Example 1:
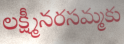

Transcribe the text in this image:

లక్ష్మీనరసమ్మకు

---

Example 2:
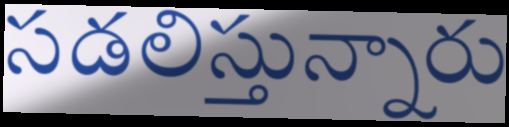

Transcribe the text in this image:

సడలిస్తున్నారు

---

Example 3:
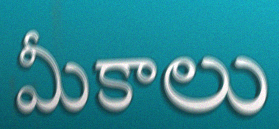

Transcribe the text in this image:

మీకాలు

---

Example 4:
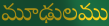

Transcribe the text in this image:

మూఢులము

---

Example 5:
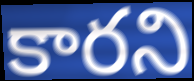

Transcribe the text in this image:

కారని